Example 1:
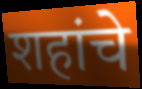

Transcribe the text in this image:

शहांचे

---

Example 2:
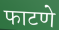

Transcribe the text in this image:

फाटणे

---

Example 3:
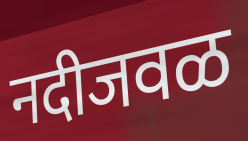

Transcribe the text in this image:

नदीजवळ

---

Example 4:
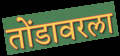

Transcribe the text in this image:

तोंडावरला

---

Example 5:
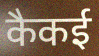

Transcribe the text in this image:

कैकई